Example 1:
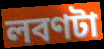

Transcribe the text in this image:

লবণটা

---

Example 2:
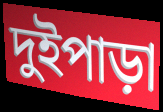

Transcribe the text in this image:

দুইপাড়া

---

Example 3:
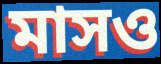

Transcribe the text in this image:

মাসও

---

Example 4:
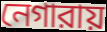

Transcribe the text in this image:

নেগারায়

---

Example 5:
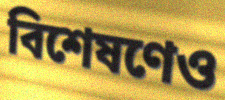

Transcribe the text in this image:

বিশেষণেও